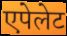
एपेलेट